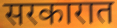
सरकारात